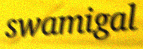
swamigal